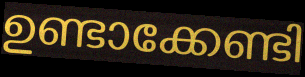
ഉണ്ടാക്കേണ്ടി